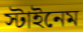
স্টাইনেম